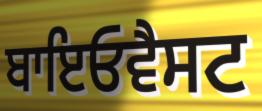
ਬਾਇਓਵੈਸਟ